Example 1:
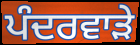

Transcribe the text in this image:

ਪੰਦਰਵਾੜੇ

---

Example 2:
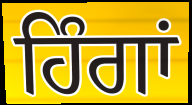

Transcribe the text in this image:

ਹਿੰਗਾਂ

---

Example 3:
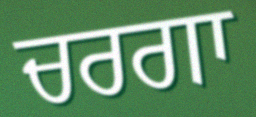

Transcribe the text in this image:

ਚਰਗਾ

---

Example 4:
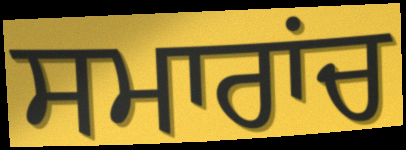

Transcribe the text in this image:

ਸਮਾਰਾਂਚ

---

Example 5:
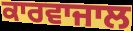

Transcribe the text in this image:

ਕਾਰਵਾਜਾਲ